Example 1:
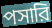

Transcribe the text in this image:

পসারি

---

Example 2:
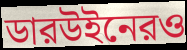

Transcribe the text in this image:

ডারউইনেরও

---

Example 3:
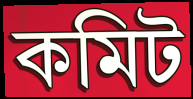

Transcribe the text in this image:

কমিট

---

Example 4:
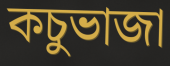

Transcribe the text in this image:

কচুভাজা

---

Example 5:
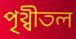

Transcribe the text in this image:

পৃথ্বীতল